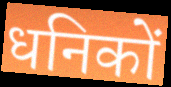
धनिकों